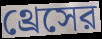
থ্রেসের